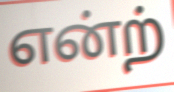
என்ற்